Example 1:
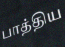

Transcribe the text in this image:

பாத்திய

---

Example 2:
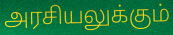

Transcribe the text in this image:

அரசியலுக்கும்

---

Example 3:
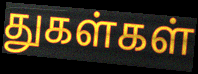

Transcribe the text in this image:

துகள்கள்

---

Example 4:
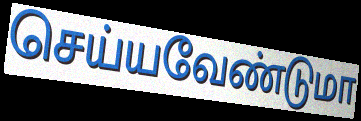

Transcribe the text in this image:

செய்யவேண்டுமா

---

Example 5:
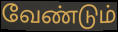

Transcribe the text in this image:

வேண்டும்